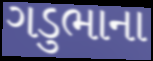
ગડુભાના